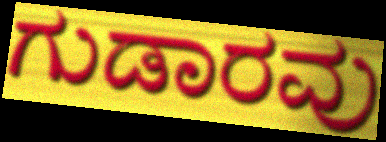
ಗುಡಾರವು